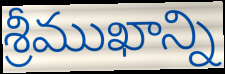
శ్రీముఖాన్ని